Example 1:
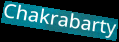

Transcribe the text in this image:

Chakrabarty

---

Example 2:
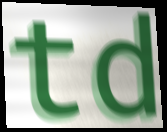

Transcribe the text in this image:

td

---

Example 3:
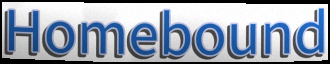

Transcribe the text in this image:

Homebound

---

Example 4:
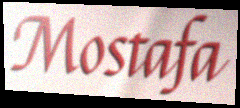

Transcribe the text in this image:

Mostafa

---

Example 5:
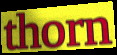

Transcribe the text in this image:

thorn